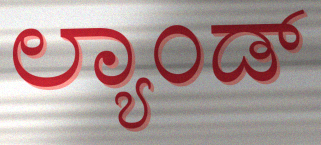
ಲ್ಯಾಂಡ್